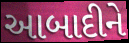
આબાદીને